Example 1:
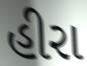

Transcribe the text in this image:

હીરા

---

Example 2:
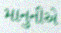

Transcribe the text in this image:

માનુનીએ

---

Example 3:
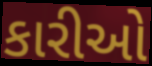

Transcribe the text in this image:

કારીઓ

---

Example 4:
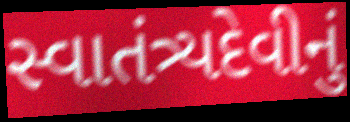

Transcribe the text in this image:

સ્વાતંત્ર્યદેવીનું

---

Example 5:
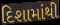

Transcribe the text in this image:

દિશામાંથી